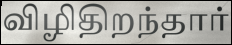
விழிதிறந்தார்